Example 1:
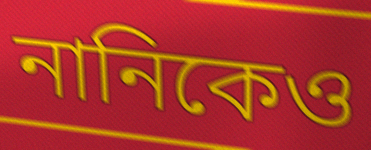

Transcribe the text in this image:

নানিকেও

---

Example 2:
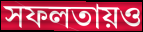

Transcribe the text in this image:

সফলতায়ও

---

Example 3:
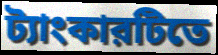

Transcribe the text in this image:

ট্যাংকারটিতে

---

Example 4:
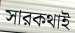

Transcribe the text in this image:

সারকথাই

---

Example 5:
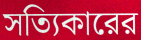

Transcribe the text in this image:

সত্যিকারের